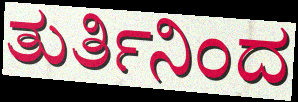
ತುರ್ತಿನಿಂದ